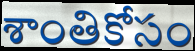
శాంతికోసం